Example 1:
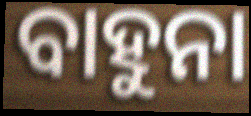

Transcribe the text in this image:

ବାହୁନା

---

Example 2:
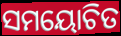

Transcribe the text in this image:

ସମୟୋଚିତ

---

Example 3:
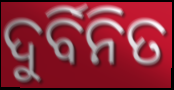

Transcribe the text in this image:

ଦୁର୍ବିନିତ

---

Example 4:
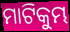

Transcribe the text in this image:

ମାଟିକୁମ୍ଭ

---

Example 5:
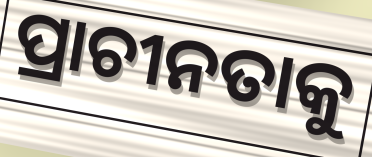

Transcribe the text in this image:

ପ୍ରାଚୀନତାକୁ